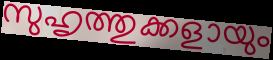
സുഹൃത്തുക്കളായും